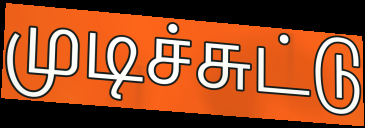
முடிச்சுட்டு